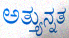
ಅತ್ತ್ಯುನ್ನತ